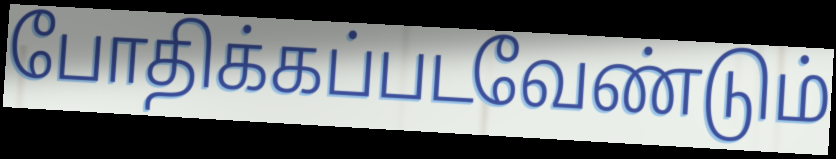
போதிக்கப்படவேண்டும்